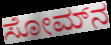
ಸೋಮ್‍ನ